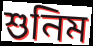
শুনিম